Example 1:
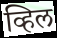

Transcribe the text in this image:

व्हिल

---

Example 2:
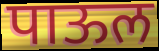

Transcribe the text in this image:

पाऊल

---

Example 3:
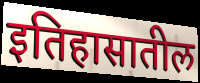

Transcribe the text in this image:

इतिहासातील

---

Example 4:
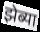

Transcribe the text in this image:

झेब्या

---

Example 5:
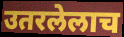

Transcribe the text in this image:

उतरलेलाच